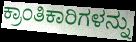
ಕ್ರಾಂತಿಕಾರಿಗಳನ್ನು